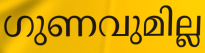
ഗുണവുമില്ല